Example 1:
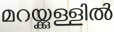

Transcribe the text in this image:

മറയ്ക്കുള്ളിൽ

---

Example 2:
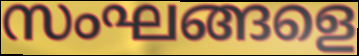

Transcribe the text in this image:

സംഘങ്ങളെ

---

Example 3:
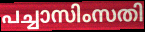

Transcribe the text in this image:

പച്ചാസിംസതി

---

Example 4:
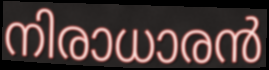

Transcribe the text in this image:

നിരാധാരൻ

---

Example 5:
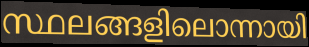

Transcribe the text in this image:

സ്ഥലങ്ങളിലൊന്നായി